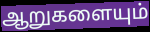
ஆறுகளையும்